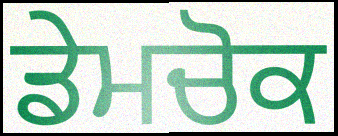
ਡੇਮਚੋਕ